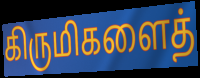
கிருமிகளைத்